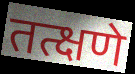
तत्क्षणे